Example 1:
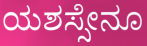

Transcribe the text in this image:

ಯಶಸ್ಸೇನೂ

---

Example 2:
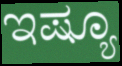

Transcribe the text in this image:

ಇಷ್ಯೂ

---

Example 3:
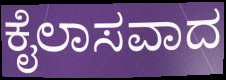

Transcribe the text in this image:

ಕೈಲಾಸವಾದ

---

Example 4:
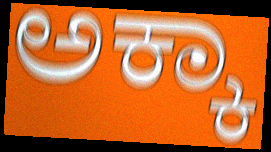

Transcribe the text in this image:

ಅಕ್ಕಾ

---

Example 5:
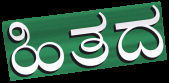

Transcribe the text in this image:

ಹಿತದ